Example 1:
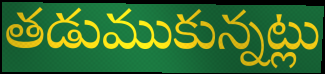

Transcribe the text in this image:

తడుముకున్నట్లు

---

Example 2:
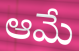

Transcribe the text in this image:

ఆమే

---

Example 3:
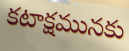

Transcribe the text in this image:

కటాక్షమునకు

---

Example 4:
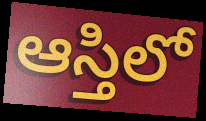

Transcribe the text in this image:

ఆస్తిలో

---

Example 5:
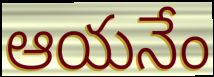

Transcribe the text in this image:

ఆయనేం